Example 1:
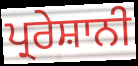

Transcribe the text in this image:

ਪ੍ਰਰੇਸ਼ਾਨੀ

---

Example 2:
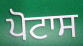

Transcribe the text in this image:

ਪੋਟਾਸ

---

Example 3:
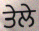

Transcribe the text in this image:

ਤੇਲੇ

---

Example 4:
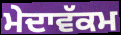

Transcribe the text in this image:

ਮੇਦਾਵੱਕਮ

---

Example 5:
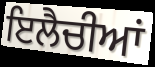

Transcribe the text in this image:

ਇਲੈਚੀਆਂ